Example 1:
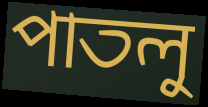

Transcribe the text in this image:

পাতলু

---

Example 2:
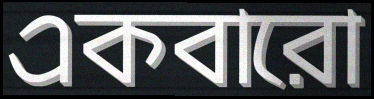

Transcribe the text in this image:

একবারো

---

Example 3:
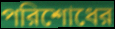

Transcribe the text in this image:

পরিশোধের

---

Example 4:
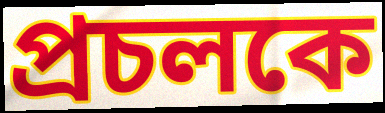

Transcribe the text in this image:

প্রচলকে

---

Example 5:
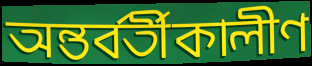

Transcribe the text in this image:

অন্তর্বর্তীকালীণ